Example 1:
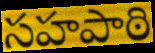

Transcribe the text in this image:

సహపాఠి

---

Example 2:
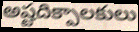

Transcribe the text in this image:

అష్టదిక్పాలకులు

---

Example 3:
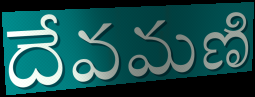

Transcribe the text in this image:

దేవమణి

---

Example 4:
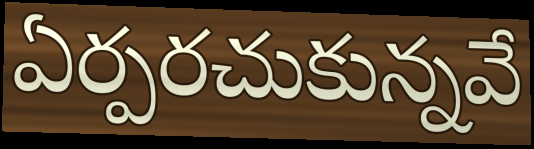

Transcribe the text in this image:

ఏర్పరచుకున్నవే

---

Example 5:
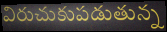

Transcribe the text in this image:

విరుచుకుపడుతున్న